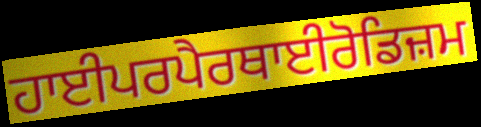
ਹਾਈਪਰਪੈਰਥਾਈਰੋਡਿਜ਼ਮ